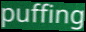
puffing